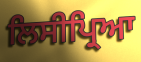
ਲਿਸੀਪ੍ਰਿਆ